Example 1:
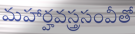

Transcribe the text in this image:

మహార్హవస్త్రసంవీతో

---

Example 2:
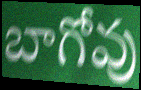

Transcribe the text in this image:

బాగోవు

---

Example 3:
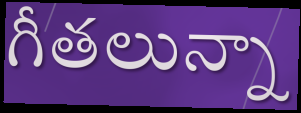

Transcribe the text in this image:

గీతలున్నా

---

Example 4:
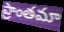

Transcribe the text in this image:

ప్రాంతమా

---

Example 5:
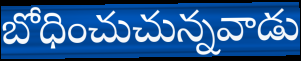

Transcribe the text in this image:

బోధించుచున్నవాడు